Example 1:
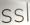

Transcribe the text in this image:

ssl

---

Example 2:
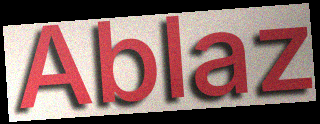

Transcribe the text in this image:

Ablaz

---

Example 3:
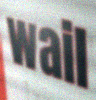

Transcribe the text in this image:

wail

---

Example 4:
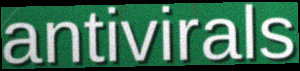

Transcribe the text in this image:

antivirals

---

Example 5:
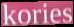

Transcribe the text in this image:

kories